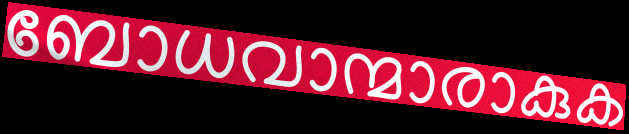
ബോധവാന്മാരാകുക